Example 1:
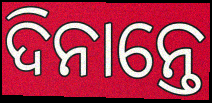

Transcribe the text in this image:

ଦିନାନ୍ତେ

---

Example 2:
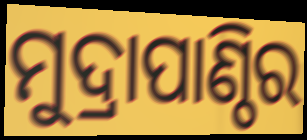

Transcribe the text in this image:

ମୁଦ୍ରାପାଣ୍ଠିର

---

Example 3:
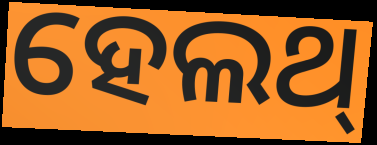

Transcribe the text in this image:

ହେଲଥ୍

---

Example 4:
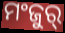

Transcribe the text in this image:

ମଂଜୁର୍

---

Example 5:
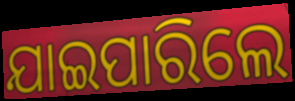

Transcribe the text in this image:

ଯାଇପାରିଲେ